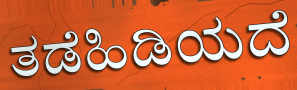
ತಡೆಹಿಡಿಯದೆ